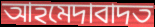
আহমেদাবাদত